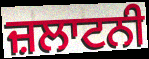
ਜ਼ਲਾਟਨੀ